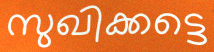
സുഖിക്കട്ടെ